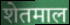
शेतमाल